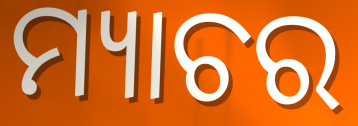
ମ୍ୟାଚର